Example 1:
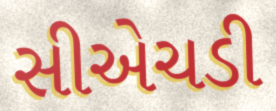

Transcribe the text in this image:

સીએચડી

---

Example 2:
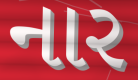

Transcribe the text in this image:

નાર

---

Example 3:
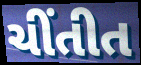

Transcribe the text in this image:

ચીંતીત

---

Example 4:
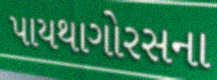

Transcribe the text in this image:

પાયથાગોરસના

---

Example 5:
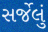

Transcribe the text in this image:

સર્જેલું